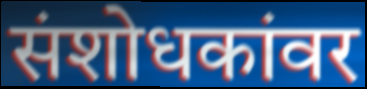
संशोधकांवर